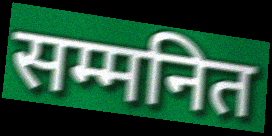
सम्मनित